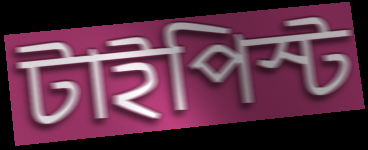
টাইপিস্ট